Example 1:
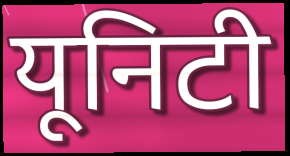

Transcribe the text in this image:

यूनिटी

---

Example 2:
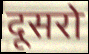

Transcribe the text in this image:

दूसरो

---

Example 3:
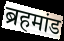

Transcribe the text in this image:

ब्रहमांड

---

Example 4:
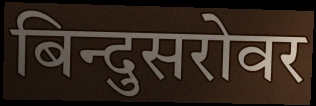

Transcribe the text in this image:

बिन्दुसरोवर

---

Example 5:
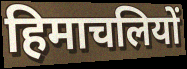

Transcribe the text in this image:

हिमाचलियों